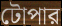
টোপার